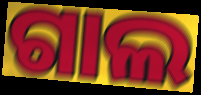
ଗାଲ